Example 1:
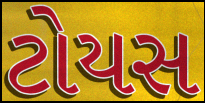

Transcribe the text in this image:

ટોયસ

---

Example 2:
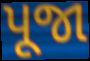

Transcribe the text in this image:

પૂજા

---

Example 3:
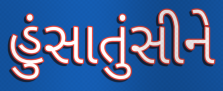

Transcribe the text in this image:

હુંસાતુંસીને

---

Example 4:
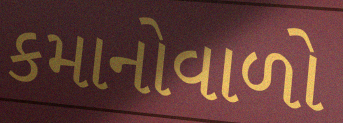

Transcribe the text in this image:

કમાનોવાળો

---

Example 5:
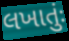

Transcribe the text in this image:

લખાતુંઃ